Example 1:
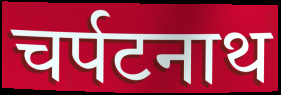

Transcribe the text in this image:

चर्पटनाथ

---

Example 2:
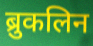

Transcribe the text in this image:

ब्रुकलिन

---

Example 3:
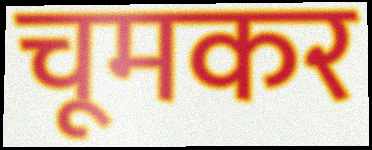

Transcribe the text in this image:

चूमकर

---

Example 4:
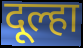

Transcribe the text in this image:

दूल्हा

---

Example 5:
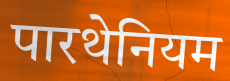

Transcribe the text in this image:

पारथेनियम